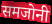
समजोनी